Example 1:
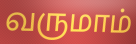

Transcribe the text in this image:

வருமாம்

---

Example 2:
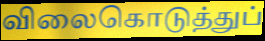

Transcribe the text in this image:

விலைகொடுத்துப்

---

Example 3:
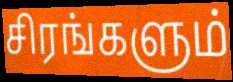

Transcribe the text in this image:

சிரங்களும்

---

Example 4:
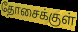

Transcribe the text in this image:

தோசைக்குள்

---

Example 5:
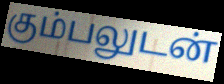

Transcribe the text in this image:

கும்பலுடன்